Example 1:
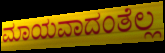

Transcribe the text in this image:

ಮಾಯವಾದಂತೆಲ್ಲ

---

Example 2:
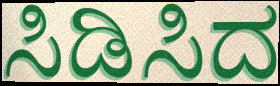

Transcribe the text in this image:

ಸಿಡಿಸಿದ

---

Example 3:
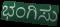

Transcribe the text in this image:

ಭಂಗಿಸು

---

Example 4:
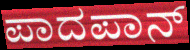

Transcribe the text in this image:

ಪಾದಪಾನ್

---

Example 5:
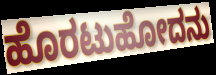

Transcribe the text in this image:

ಹೊರಟುಹೋದನು